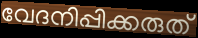
വേദനിപ്പിക്കരുത്